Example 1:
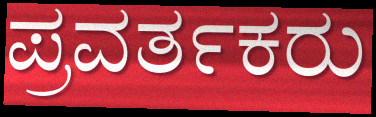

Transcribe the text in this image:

ಪ್ರವರ್ತಕರು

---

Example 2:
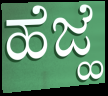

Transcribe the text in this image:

ಹೆಜ್ಹೆ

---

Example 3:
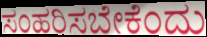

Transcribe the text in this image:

ಸಂಹರಿಸಬೇಕೆಂದು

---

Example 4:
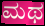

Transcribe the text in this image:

ಮಥ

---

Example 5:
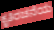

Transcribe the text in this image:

ಕೃತಿರಚನೆಯ